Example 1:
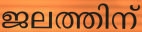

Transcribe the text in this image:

ജലത്തിന്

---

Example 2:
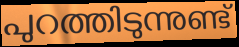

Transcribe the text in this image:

പുറത്തിടുന്നുണ്ട്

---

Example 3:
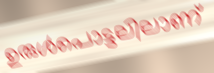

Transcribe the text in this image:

ഉരുൾപൊട്ടലിലാണ്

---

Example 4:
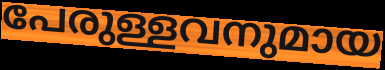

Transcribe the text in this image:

പേരുള്ളവനുമായ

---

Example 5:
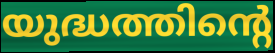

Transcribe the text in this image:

യുദ്ധത്തിന്റെ